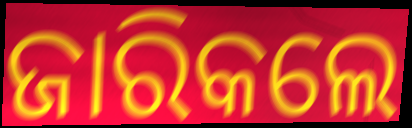
ଜାରିକଲେ